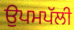
ਉਪਮਪੱਲੀ